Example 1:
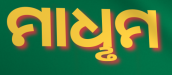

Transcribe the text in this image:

ମାଧୢମ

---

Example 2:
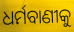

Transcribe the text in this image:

ଧର୍ମବାଣୀକୁ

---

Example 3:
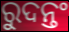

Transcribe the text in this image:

ରୁଦନ୍ତଂ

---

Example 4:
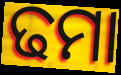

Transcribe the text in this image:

ଢମା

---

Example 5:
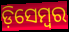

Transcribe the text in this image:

ଡ଼ିସେମ୍ୱର